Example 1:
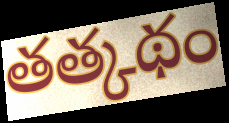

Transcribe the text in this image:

తత్కథం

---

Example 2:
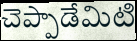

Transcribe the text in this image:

చెప్పాడేమిటి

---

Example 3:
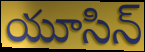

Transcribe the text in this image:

యూసిన్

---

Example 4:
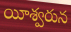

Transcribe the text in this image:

యీశ్వరున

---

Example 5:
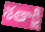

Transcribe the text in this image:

శతాక్షీ